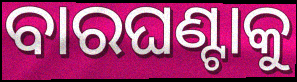
ବାରଘଣ୍ଟାକୁ